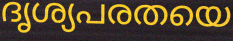
ദൃശ്യപരതയെ